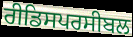
ਰੀਡਿਸਪਰਸੀਬਲ